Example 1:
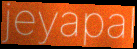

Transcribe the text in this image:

jeyapal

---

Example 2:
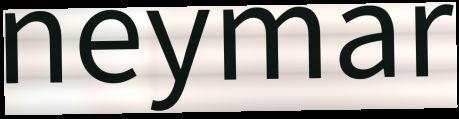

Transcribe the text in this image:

neymar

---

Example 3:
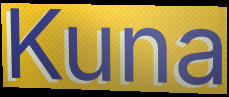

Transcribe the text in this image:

Kuna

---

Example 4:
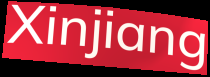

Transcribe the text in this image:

Xinjiang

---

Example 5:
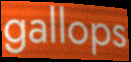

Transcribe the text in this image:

gallops